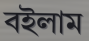
বইলাম